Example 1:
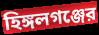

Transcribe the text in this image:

হিঙ্গলগঞ্জের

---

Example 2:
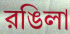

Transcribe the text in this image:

রঙিলা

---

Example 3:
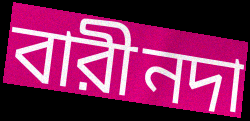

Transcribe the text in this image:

বারীনদা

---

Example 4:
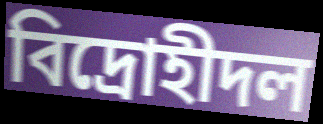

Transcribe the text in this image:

বিদ্রোহীদল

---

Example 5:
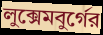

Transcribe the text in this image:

লুক্সেমবুর্গের